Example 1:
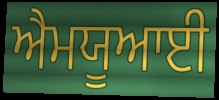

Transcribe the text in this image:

ਐਮਯੂਆਈ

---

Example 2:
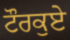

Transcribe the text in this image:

ਟੌਰਕੁਏ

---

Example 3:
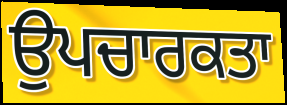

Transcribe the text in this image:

ਉਪਚਾਰਕਤਾ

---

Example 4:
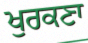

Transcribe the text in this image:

ਖੁਰਕਣਾ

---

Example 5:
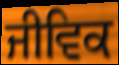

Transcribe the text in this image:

ਜੀਵਿਕ